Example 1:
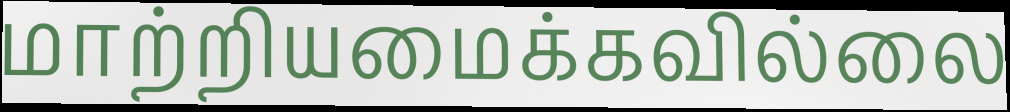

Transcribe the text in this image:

மாற்றியமைக்கவில்லை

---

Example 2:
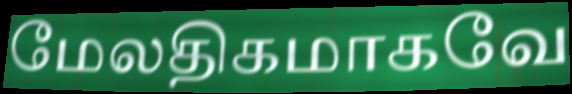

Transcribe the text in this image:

மேலதிகமாகவே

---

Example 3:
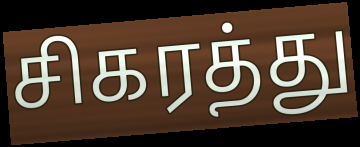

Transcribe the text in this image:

சிகரத்து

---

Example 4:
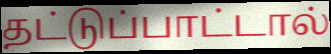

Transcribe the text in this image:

தட்டுப்பாட்டால்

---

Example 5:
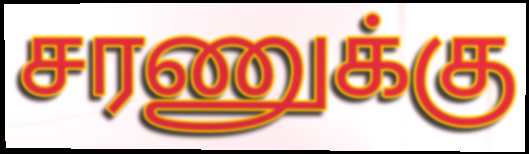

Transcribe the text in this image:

சரணுக்கு